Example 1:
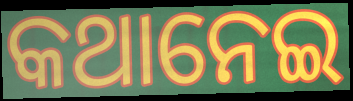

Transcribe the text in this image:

କଥାନେଇ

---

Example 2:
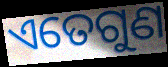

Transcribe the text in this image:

ଏତେଗୁଣ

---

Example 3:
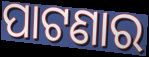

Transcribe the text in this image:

ପାଟଣାର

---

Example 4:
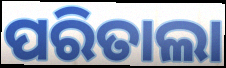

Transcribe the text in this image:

ପରିତାଲା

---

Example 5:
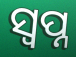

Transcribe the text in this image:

ସ୍ବପ୍ନ